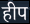
हीप